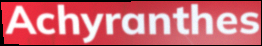
Achyranthes